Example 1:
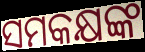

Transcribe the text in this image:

ସମକକ୍ଷଙ୍କ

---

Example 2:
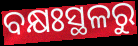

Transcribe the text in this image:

ବକ୍ଷଃସ୍ଥଳରୁ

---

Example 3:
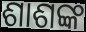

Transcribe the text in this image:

ଶାଶଙ୍କ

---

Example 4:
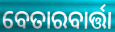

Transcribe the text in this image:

ବେତାରବାର୍ତ୍ତା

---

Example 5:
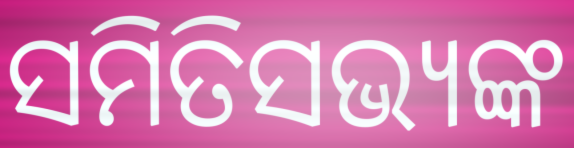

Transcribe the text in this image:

ସମିତିସଭ୍ୟଙ୍କ